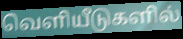
வெளியீடுகளில்